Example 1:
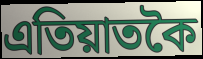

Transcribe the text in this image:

এতিয়াতকৈ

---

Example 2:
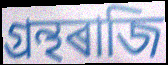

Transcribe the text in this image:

গ্ৰন্থৰাজি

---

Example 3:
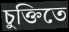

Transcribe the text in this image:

চুক্তিতে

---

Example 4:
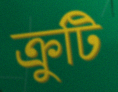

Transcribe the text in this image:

ক্ৰুটি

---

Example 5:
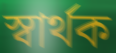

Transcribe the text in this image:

স্বাৰ্থক